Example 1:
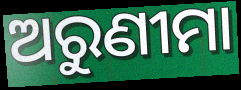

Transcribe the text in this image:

ଅରୁଣୀମା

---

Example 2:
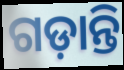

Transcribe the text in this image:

ଗଡ଼ାନ୍ତି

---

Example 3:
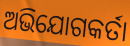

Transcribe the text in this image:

ଅଭିଯୋଗକର୍ତା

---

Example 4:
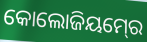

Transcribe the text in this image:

କୋଲୋଜିୟମ୍‍ରେ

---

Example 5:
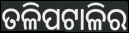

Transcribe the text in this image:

ତଳିପଟାଳିର